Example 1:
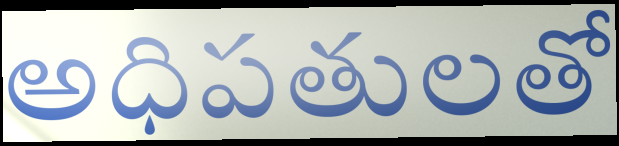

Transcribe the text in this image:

అధిపతులతో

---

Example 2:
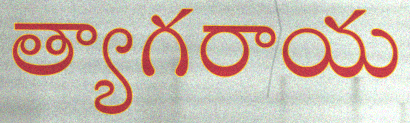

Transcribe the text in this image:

త్యాగరాయ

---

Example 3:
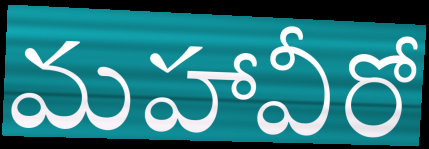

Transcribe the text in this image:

మహావీరో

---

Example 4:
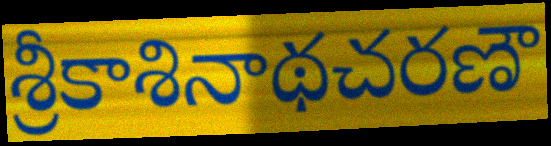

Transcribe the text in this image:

శ్రీకాశినాథచరణౌ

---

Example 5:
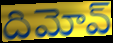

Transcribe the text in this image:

దిమోవ్